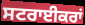
ਸਟਰਾਈਕਰਾਂ